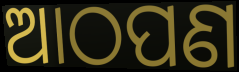
ଆଠପଣ